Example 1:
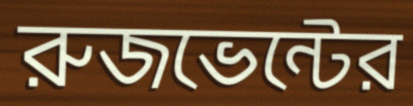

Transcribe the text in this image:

রুজভেন্টের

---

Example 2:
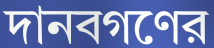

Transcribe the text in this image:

দানবগণের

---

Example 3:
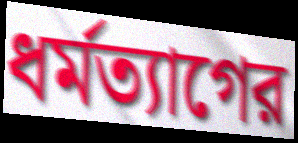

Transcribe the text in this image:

ধর্মত্যাগের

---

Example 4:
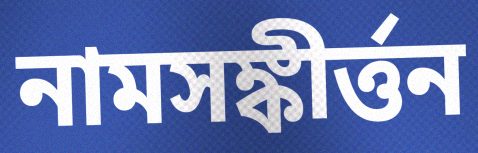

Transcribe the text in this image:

নামসঙ্কীর্ত্তন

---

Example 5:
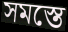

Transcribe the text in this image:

সমস্তে